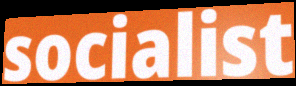
socialist